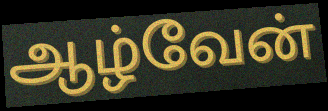
ஆழ்வேன்